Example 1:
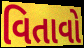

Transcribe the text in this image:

વિતાવો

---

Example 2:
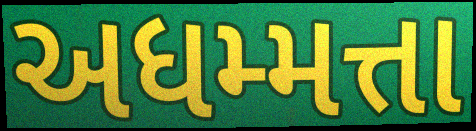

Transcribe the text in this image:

અધમ્મત્તા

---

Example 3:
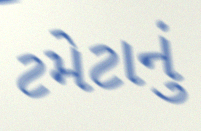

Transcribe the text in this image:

ટમેટાનું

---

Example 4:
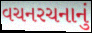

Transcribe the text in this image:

વચનરચનાનું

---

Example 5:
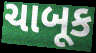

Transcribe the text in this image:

ચાબૂક